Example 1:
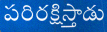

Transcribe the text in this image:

పరిరక్షిస్తాడు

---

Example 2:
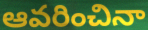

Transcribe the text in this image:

ఆవరించినా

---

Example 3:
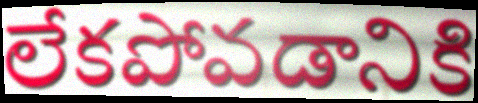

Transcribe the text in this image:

లేకపోవడానికి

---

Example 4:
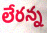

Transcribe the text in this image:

లేరన్న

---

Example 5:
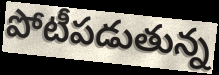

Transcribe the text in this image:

పోటీపడుతున్న